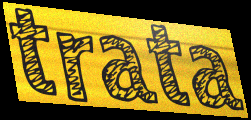
trata